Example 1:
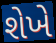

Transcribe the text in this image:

શેખે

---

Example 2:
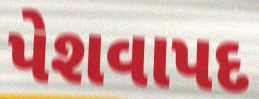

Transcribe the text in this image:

પેશવાપદ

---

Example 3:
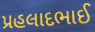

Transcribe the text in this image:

પ્રહલાદભાઈ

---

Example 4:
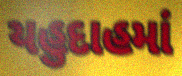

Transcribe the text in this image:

યહુદાહમાં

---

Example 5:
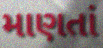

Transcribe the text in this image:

માણતાં